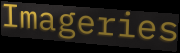
Imageries